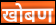
खोबण